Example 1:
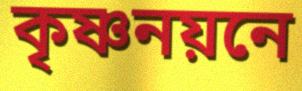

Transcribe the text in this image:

কৃষ্ণনয়নে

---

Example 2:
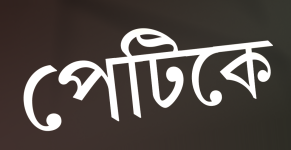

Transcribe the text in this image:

পেটিকে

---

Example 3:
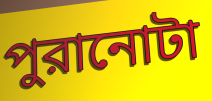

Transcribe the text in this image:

পুরানোটা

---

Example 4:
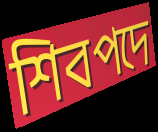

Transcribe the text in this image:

শিবপদে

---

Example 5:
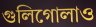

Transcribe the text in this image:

গুলিগোলাও